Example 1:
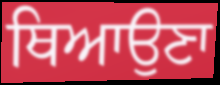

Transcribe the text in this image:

ਥਿਆਉਣਾ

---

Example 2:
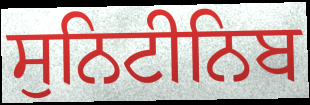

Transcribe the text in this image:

ਸੁਨਿਟੀਨਿਬ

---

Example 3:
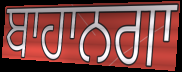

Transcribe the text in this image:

ਬਾਹਾਨਗਾ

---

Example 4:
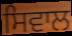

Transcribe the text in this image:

ਸਿਵਾਲ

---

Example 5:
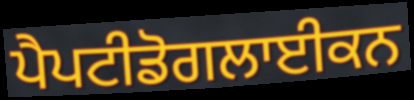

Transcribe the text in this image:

ਪੈਪਟੀਡੋਗਲਾਈਕਨ